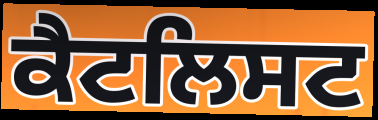
ਕੈਟਲਿਸਟ